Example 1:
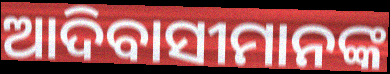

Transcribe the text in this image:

ଆଦିବାସୀମାନଙ୍କ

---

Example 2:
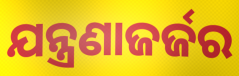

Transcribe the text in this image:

ଯନ୍ତ୍ରଣାଜର୍ଜର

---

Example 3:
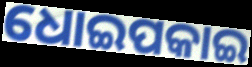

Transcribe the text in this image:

ଧୋଇପକାଇ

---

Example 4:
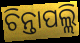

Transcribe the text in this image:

ଚିନ୍ତାପଲ୍ଲି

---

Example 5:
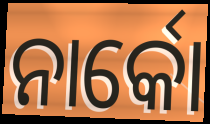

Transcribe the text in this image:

ନାର୍କୋ